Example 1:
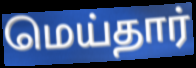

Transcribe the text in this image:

மெய்தார்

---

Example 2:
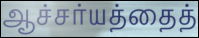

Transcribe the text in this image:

ஆச்சர்யத்தைத்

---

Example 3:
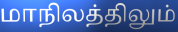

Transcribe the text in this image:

மாநிலத்திலும்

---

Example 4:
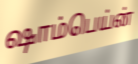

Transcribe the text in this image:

ஷாம்பெய்ன்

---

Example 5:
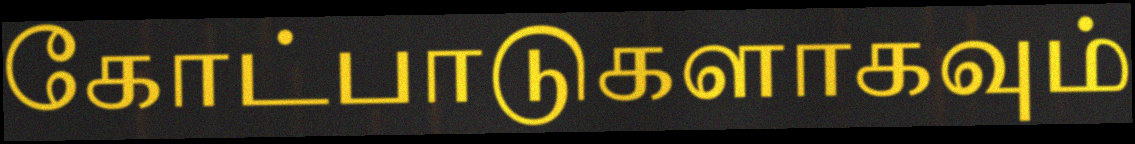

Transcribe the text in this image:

கோட்பாடுகளாகவும்